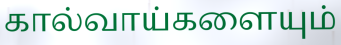
கால்வாய்களையும்